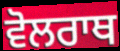
ਵੋਲਰਾਥ